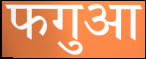
फगुआ